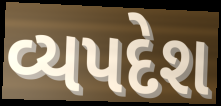
વ્યપદેશ